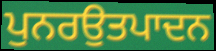
ਪੁਨਰਉਤਪਾਦਨ